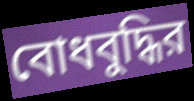
বোধবুদ্ধির